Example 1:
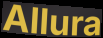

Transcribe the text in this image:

Allura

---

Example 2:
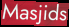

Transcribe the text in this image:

Masjids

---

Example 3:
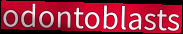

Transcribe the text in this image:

odontoblasts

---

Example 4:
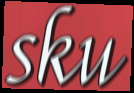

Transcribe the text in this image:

sku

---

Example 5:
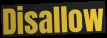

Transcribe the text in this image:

Disallow